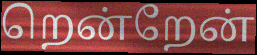
றென்றேன்